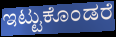
ಇಟ್ಟುಕೊಂಡರೆ